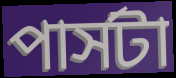
পার্সটা